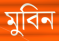
মুবিন